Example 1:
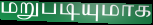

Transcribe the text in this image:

மறுபடியுமாக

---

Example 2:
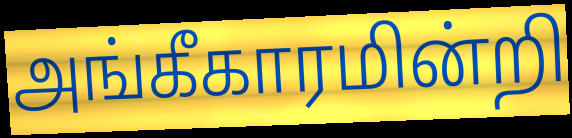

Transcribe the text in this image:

அங்கீகாரமின்றி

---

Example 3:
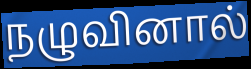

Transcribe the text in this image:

நழுவினால்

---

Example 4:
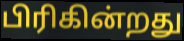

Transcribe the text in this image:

பிரிகின்றது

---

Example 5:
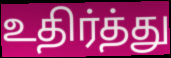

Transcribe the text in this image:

உதிர்த்து